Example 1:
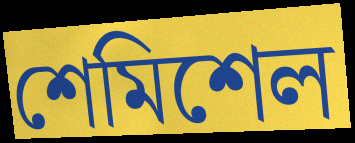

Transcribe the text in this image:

শেমিশেল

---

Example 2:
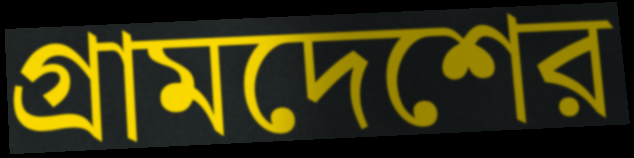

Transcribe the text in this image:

গ্রামদেশের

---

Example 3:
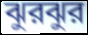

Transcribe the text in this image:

ঝুরঝুর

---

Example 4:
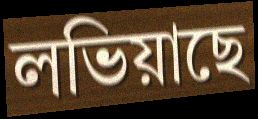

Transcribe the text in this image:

লভিয়াছে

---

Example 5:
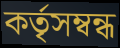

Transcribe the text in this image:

কর্তৃসম্বন্ধ